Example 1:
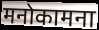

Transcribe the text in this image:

मनोकामना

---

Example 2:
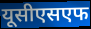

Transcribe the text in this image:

यूसीएसएफ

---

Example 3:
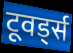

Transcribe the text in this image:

टूवर्ड्स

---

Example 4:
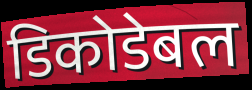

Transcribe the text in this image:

डिकोडेबल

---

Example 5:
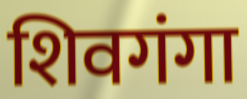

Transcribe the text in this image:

शिवगंगा